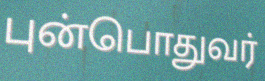
புன்பொதுவர்